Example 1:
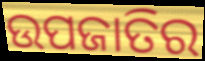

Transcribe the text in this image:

ଉପଜାତିର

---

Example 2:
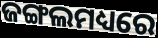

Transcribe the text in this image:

ଜଙ୍ଗଲମଧ୍ୟରେ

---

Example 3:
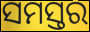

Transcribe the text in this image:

ସମସ୍ତର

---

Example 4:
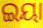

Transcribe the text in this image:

ଇୟା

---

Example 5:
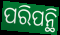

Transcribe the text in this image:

ପରିପନ୍ଥି